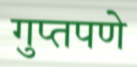
गुप्तपणे